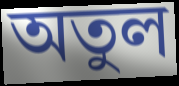
অতুল